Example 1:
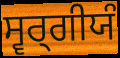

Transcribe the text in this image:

ਸ੍ਵਰ੍ਗੀਯੰ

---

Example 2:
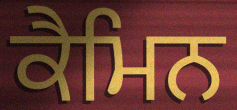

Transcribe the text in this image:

ਕੈਮਿਨ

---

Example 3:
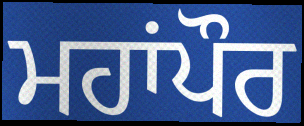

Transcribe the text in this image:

ਮਹਾਂਪੌਰ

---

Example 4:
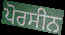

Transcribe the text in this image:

ਪੋਰਸੀਨ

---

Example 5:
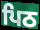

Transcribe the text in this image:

ਪਿਠ